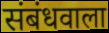
संबंधवाला